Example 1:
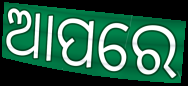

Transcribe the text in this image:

ଆପରେ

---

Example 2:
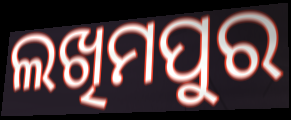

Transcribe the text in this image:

ଲଖିମପୁର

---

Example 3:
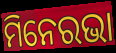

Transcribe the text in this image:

ମିନେରଭା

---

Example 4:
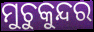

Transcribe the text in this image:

ମୁଚୁକୁନ୍ଦର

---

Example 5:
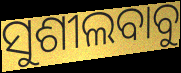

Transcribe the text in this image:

ସୁଶୀଲବାବୁ